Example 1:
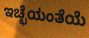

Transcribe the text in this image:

ಇಚ್ಛೆಯಂತೆಯೆ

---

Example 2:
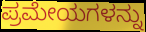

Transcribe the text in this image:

ಪ್ರಮೇಯಗಳನ್ನು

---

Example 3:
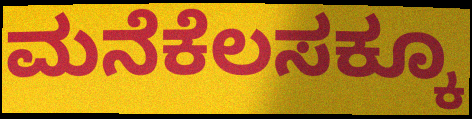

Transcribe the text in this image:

ಮನೆಕೆಲಸಕ್ಕೂ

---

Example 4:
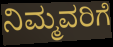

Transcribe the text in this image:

ನಿಮ್ಮವರಿಗೆ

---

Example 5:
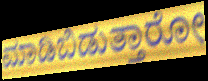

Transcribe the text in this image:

ಮಾಡಿಬಿಡುತ್ತಾರೋ